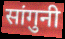
सांगुनी